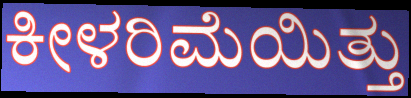
ಕೀಳರಿಮೆಯಿತ್ತು